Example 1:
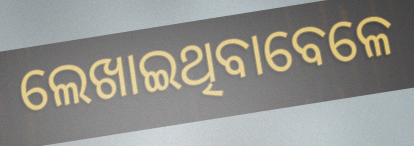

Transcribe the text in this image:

ଲେଖାଇଥିବାବେଳେ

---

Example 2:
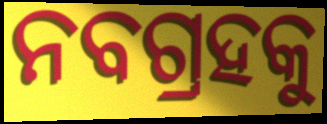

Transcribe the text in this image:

ନବଗ୍ରହକୁ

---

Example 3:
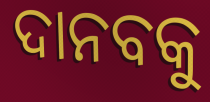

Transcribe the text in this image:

ଦାନବକୁ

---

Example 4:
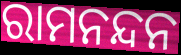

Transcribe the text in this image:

ରାମନନ୍ଦନ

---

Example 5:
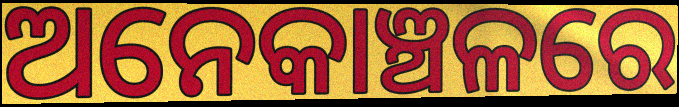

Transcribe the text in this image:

ଅନେକାଞ୍ଚଳରେ